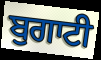
ਬੁਗਾਟੀ